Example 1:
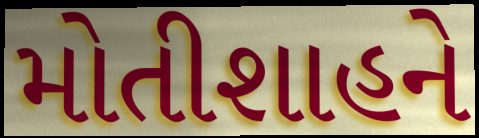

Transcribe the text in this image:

મોતીશાહને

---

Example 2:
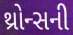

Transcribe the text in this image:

થ્રોન્સની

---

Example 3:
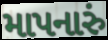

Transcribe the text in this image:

માપનારું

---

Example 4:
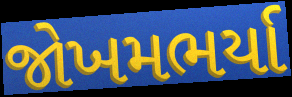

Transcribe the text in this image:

જોખમભર્યા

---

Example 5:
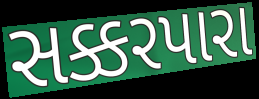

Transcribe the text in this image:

સક્કરપારા